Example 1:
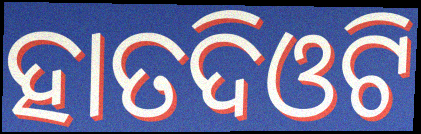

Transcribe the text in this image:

ହାତଦିଓଟି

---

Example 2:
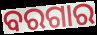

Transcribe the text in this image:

ବରଗାର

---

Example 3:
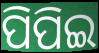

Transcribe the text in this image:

ପିପିଇ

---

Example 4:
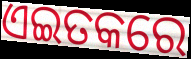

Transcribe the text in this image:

ଏଇତକରେ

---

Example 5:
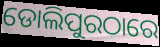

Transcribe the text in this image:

ଡୋଲିପୁରଠାରେ